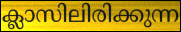
ക്ലാസിലിരിക്കുന്ന